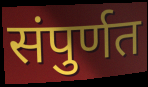
संपुर्णत